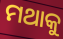
ମଥାକୁ